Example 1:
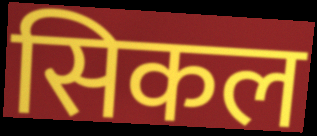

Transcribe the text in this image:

सिकल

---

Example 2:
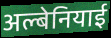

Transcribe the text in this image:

अल्बेनियाई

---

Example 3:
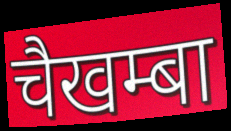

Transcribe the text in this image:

चैखम्बा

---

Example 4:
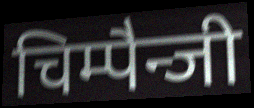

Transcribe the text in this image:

चिम्पैन्जी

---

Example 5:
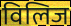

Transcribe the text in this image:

विलिज